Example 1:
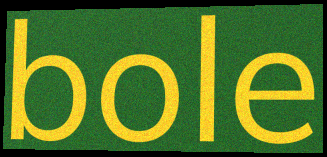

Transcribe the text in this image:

bole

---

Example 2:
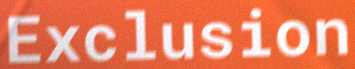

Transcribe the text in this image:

Exclusion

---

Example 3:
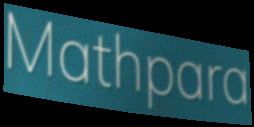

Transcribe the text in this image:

Mathpara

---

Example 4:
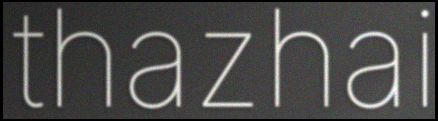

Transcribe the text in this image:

thazhai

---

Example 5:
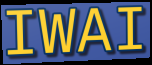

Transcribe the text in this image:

IWAI